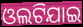
ଓଲଟିଯାଇ